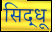
सिद्धू